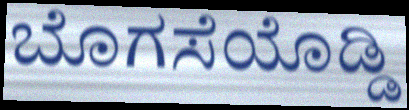
ಬೊಗಸೆಯೊಡ್ಡಿ